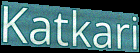
Katkari